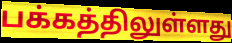
பக்கத்திலுள்ளது